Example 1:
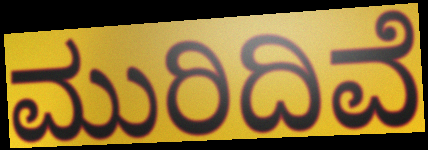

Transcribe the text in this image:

ಮುರಿದಿವೆ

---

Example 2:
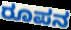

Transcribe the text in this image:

ರೂಪನ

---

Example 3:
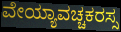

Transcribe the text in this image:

ವೇಯ್ಯಾವಚ್ಚಕರಸ್ಸ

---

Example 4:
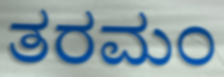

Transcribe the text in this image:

ತರಮಂ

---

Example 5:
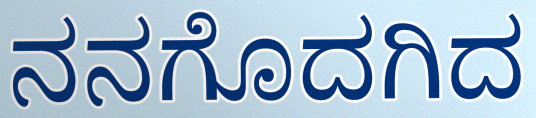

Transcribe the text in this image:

ನನಗೊದಗಿದ